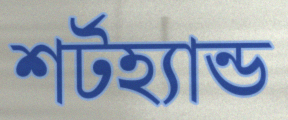
শর্টহ্যান্ড